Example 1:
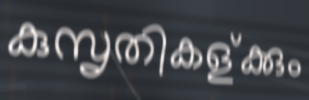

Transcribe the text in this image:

കുസൃതികള്ക്കും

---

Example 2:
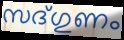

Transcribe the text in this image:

സദ്ഗുണം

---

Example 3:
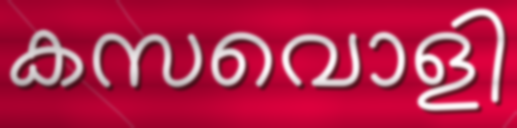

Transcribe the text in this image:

കസവൊളി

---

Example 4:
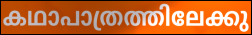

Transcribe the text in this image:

കഥാപാത്രത്തിലേക്കു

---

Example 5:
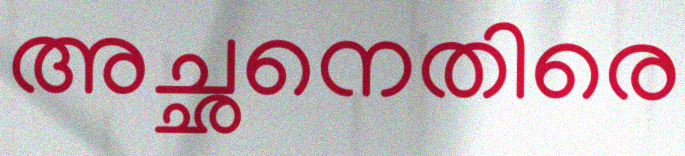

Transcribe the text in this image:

അച്ഛനെതിരെ